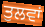
ਤੁਲਵਾਂ